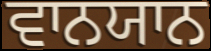
ਵਾਨਯਾਨ